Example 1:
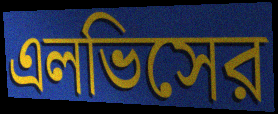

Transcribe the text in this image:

এলভিসের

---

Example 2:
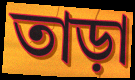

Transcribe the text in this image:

তাড়া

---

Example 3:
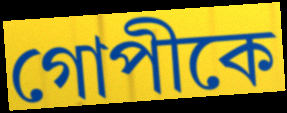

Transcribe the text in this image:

গোপীকে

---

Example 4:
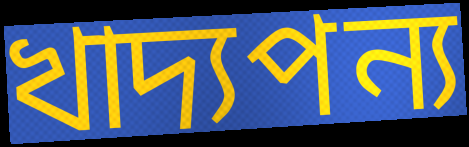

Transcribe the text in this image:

খাদ্যপন্য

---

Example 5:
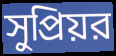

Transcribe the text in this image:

সুপ্রিয়র